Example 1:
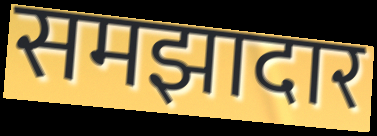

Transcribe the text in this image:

समझादार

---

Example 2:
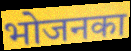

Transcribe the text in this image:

भोजनका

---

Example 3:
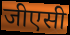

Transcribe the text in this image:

जीएसी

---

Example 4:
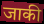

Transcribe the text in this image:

जाकी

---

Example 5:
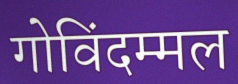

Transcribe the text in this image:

गोविंदम्मल